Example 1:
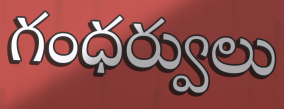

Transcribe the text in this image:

గంధర్వులు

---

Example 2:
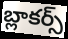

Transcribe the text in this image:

బ్లాకర్స్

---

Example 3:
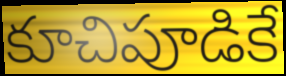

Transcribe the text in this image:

కూచిపూడికే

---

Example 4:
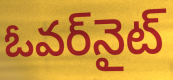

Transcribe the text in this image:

ఓవర్‌నైట్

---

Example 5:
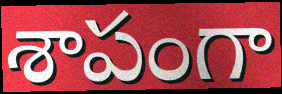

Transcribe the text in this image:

శాపంగా